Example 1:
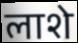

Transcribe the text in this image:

लाशे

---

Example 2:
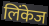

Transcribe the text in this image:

लिंकेज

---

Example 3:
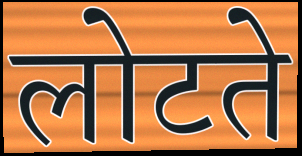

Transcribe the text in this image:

लोटते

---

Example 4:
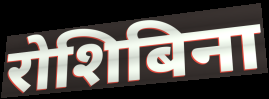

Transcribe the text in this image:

रोशिबिना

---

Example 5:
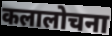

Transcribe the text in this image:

कलालोचना